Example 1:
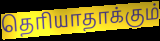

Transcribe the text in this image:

தெரியாதாக்கும்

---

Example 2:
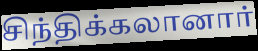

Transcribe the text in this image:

சிந்திக்கலானார்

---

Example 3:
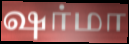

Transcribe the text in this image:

ஷர்மா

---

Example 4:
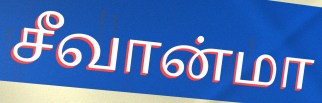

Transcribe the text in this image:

சீவான்மா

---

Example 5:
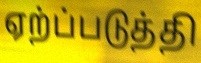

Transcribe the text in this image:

ஏற்ப்படுத்தி